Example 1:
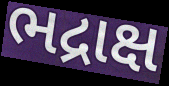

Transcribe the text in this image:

ભદ્રાક્ષ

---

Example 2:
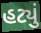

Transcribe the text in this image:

હટ્યું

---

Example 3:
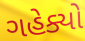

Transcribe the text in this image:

ગહેક્યો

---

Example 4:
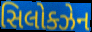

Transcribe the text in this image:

સિલોક્ઝેન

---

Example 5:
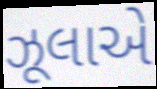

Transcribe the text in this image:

ઝૂલાએ